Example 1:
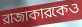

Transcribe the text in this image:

রাজাকারকেও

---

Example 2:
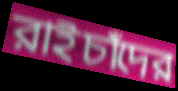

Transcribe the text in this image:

রাইচাঁদের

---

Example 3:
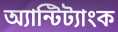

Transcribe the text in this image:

অ্যান্টিট্যাংক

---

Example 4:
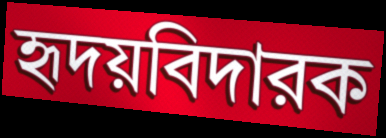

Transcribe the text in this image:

হৃদয়বিদারক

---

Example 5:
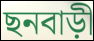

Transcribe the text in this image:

ছনবাড়ী